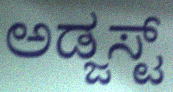
ಅಡ್ಜಸ್ಟ್